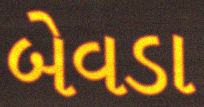
બેવડા